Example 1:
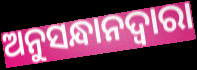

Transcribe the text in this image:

ଅନୁସନ୍ଧାନଦ୍ୱାରା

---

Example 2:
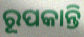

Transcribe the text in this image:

ରୂପକାନ୍ତି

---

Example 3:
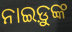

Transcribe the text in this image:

ନାଇଡ଼ୁଙ୍କ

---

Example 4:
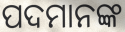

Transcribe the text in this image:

ପଦମାନଙ୍କ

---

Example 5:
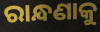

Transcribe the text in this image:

ରାନ୍ଧଣାକୁ